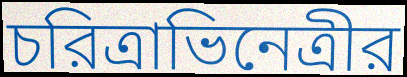
চরিত্রাভিনেত্রীর